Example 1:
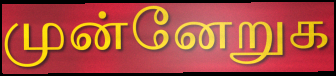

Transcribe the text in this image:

முன்னேறுக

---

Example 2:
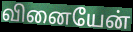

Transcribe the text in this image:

வினையேன்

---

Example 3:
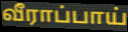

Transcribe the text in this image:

வீராப்பாய்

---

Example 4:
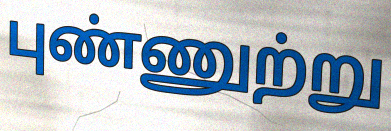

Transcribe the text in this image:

புண்ணுற்று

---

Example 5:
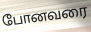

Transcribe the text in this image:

போனவரை